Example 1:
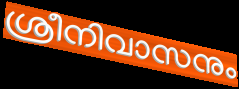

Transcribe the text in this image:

ശ്രീനിവാസനും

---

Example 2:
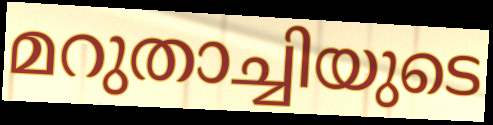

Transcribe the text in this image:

മറുതാച്ചിയുടെ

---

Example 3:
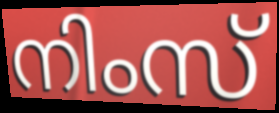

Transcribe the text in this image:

നിംസ്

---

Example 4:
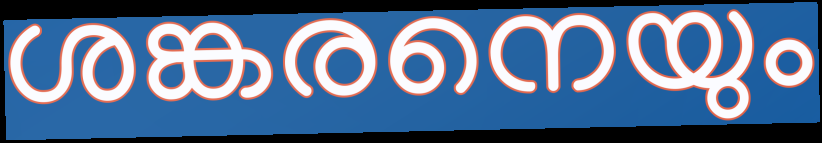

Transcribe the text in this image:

ശങ്കരനെയും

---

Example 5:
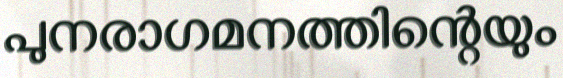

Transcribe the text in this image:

പുനരാഗമനത്തിന്റെയും